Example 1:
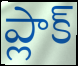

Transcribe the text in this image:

ప్లాక్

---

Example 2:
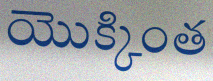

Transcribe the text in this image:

యొక్కింత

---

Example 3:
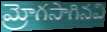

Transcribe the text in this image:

మ్రోగసాగినవి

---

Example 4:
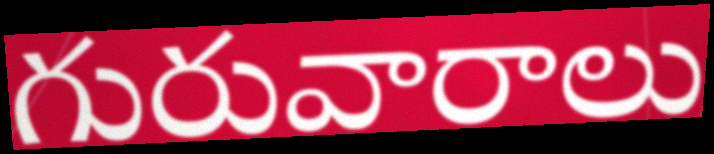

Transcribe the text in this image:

గురువారాలు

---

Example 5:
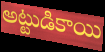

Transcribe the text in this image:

అట్టుడికాయి